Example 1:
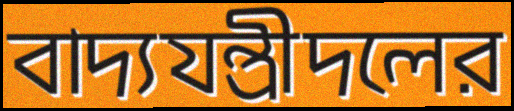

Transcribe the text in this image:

বাদ্যযন্ত্রীদলের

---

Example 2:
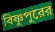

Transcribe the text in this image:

বিষ্ণুপুরের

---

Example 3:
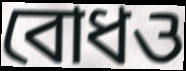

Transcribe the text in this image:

বোধও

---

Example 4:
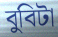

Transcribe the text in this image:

বুবিটা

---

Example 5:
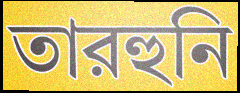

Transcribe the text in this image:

তারহুনি